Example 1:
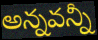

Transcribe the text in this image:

అన్నవన్నీ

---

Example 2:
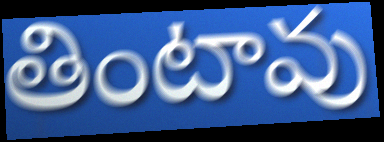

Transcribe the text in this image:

తింటావు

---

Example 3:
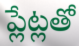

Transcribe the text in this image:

ప్లేట్లతో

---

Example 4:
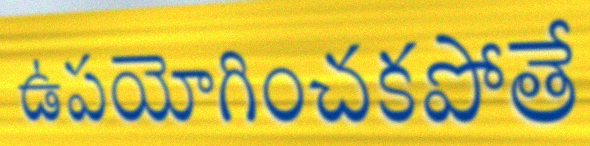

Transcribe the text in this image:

ఉపయోగించకపోతే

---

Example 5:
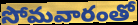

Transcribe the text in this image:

సోమవారంతో